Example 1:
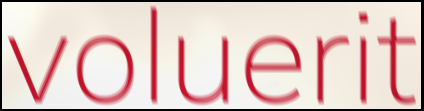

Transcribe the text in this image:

voluerit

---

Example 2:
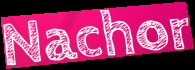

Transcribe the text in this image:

Nachor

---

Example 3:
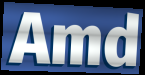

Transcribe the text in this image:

Amd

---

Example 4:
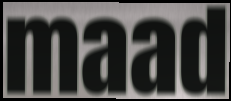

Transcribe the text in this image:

maad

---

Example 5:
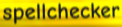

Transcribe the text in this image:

spellchecker